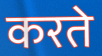
करते